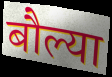
बौल्या